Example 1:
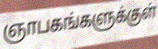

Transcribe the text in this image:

ஞாபகங்களுக்குள்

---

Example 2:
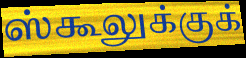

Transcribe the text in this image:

ஸ்கூலுக்குக்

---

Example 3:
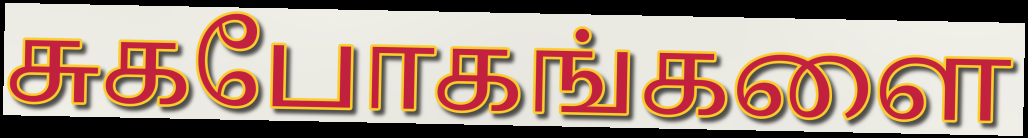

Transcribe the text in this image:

சுகபோகங்களை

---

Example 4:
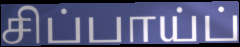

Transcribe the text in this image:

சிப்பாய்ப்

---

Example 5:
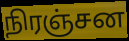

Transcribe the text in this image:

நிரஞ்சன